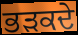
ਭੜਕਦੇ